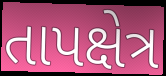
તાપક્ષેત્ર